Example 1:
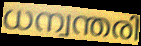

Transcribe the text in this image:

ധന്വന്തരി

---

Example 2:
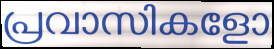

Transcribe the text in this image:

പ്രവാസികളോ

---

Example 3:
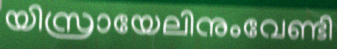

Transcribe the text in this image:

യിസ്രായേലിനുംവേണ്ടി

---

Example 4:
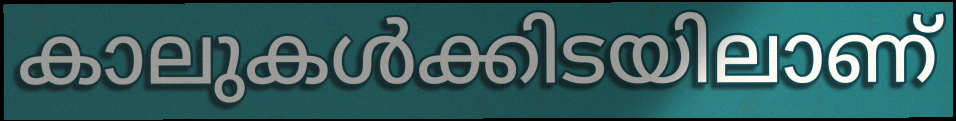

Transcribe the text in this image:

കാലുകൾക്കിടയിലാണ്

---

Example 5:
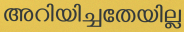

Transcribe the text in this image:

അറിയിച്ചതേയില്ല